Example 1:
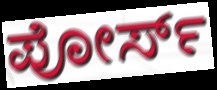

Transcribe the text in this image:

ಪೋರ್ಸ್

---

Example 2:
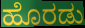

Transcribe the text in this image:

ಹೊರಡು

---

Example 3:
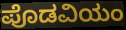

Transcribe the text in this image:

ಪೊಡವಿಯಂ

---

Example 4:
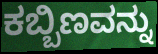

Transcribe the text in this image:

ಕಬ್ಬಿಣವನ್ನು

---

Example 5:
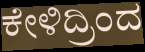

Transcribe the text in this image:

ಕೇಳಿದ್ರಿಂದ